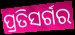
ପ୍ରତିସର୍ଗର